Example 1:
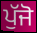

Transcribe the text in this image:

ਪੁੱਜੋ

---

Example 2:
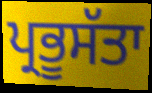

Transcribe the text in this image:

ਪ੍ਰਭੂਸੱਤਾ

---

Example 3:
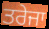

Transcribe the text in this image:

ਤਰੇਜਾ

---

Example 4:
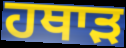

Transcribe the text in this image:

ਹਥਾੜ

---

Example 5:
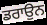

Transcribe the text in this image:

ਡਰਾਉਨ